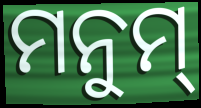
ମନୁମ୍